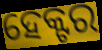
ହେକ୍ଟର